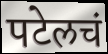
पटेलचं